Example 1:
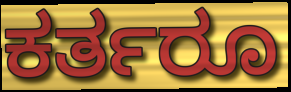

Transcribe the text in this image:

ಕರ್ತರೂ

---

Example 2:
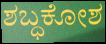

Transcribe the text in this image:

ಶಬ್ಧಕೋಶ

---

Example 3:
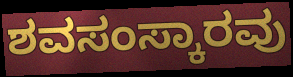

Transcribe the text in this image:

ಶವಸಂಸ್ಕಾರವು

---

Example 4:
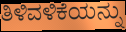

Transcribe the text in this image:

ತಿಳಿವಳಿಕೆಯನ್ನು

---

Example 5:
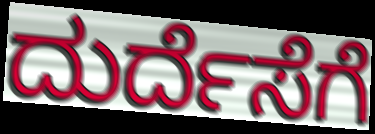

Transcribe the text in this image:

ದುರ್ದೆಸೆಗೆ